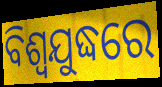
ବିଶ୍ଵଯୁଦ୍ଧରେ